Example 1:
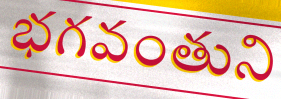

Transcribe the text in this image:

భగవంతుని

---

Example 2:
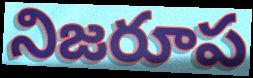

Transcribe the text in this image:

నిజరూప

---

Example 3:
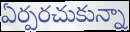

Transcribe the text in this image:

ఏర్పరచుకున్నా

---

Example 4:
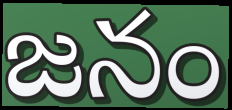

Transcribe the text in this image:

జనం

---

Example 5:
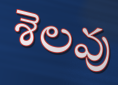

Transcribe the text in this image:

శెలవు